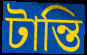
টান্তি